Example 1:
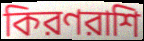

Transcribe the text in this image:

কিরণরাশি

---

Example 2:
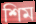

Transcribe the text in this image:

শিম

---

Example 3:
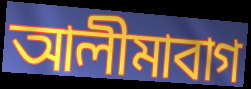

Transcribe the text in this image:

আলীমাবাগ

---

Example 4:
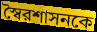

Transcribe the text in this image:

স্বৈরশাসনকে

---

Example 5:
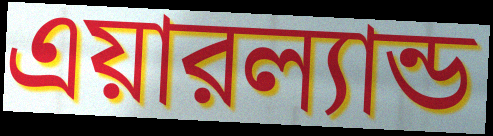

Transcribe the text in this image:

এয়ারল্যান্ড